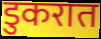
डुकरात